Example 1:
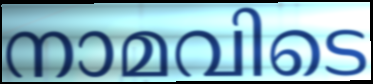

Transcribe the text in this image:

നാമവിടെ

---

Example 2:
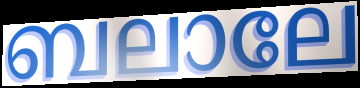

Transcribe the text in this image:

ബലാലേ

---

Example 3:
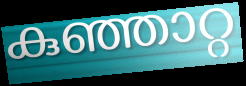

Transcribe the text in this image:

കുഞ്ഞാറ്റ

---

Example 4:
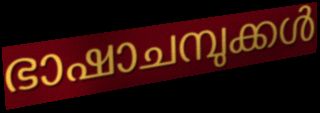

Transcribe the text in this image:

ഭാഷാചമ്പുക്കൾ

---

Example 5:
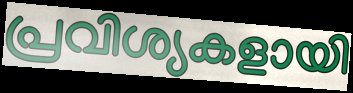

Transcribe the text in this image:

പ്രവിശ്യകളായി